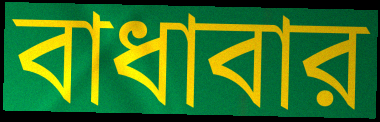
বাধাবার